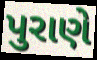
પુરાણે